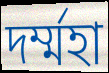
দৰ্ম্মহা